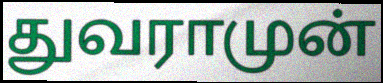
துவராமுன்